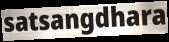
satsangdhara